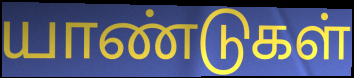
யாண்டுகள்